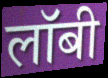
लॉबी